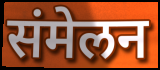
संमेलन